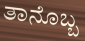
ತಾನೊಬ್ಬ